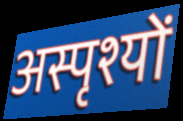
अस्पृश्यों